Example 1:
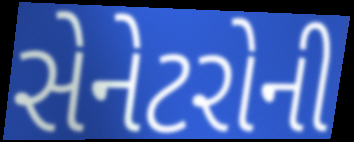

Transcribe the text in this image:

સેનેટરોની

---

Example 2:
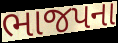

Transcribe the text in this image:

ભાજપના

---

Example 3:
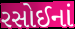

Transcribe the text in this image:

રસોઈનાં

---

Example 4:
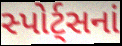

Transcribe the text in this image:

સ્પોર્ટ્સનાં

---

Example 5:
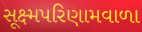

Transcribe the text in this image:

સૂક્ષ્મપરિણામવાળા